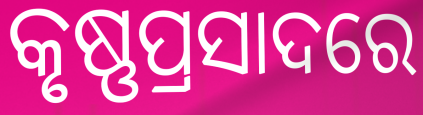
କୃଷ୍ଣପ୍ରସାଦରେ